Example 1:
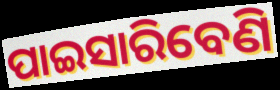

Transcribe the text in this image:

ପାଇସାରିବେଣି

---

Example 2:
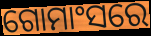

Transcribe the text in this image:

ଗୋମାଂସରେ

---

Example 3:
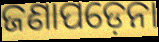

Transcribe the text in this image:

ଜଣାପଡ଼େନା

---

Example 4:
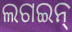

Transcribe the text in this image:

ଲଗଇନ୍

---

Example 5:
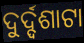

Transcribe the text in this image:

ଦୁର୍ଦ୍ଦଶାଟା